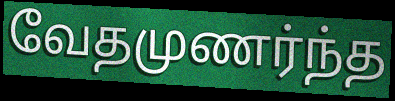
வேதமுணர்ந்த